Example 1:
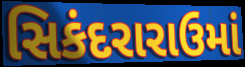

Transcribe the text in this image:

સિકંદરારાઉમાં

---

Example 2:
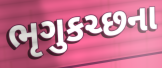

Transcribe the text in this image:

ભૃગુકચ્છના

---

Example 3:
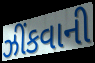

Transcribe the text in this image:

ઝીંકવાની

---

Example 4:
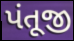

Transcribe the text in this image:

પંતૂજી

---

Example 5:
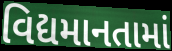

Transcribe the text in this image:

વિદ્યમાનતામાં